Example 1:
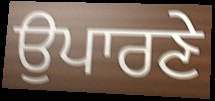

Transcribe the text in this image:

ਉਪਾਰਣੇ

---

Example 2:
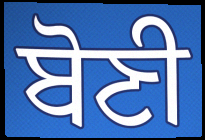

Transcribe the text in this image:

ਬੋਣੀ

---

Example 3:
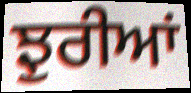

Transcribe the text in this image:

ਝੁਰੀਆਂ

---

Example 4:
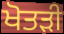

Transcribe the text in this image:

ਖੋਤੜੀ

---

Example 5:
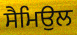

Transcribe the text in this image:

ਸੈਮਿਉਲ